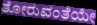
ತೋರುವಂತೆಯೇ